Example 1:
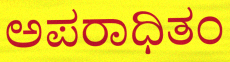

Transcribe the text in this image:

ಅಪರಾಧಿತಂ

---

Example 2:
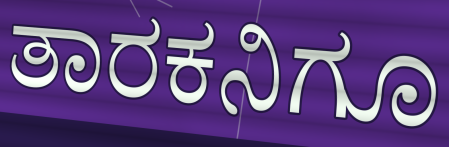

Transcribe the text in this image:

ತಾರಕನಿಗೂ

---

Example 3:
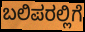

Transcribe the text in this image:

ಬಲಿಪರಲ್ಲಿಗೆ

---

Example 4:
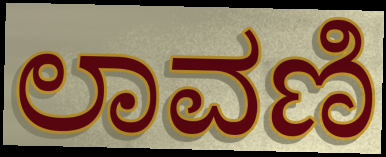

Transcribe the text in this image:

ಲಾವಣಿ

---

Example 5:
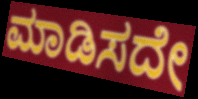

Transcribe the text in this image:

ಮಾಡಿಸದೇ